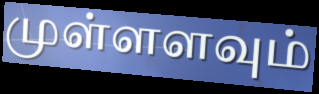
முள்ளளவும்